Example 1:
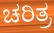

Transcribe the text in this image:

ಚರಿತ್ರ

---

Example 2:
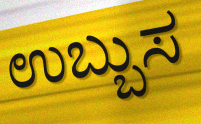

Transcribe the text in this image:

ಉಬ್ಬುಸ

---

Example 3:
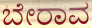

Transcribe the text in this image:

ಬೇರಾವ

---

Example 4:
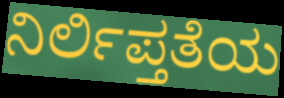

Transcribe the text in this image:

ನಿರ್ಲಿಪ್ತತೆಯ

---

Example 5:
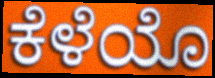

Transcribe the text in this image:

ಕೆಳೆಯೊ